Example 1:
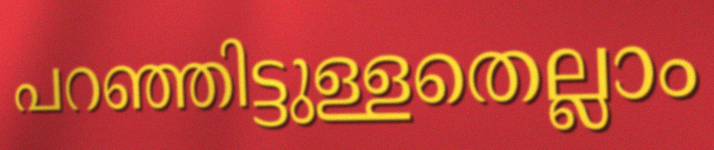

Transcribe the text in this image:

പറഞ്ഞിട്ടുള്ളതെല്ലാം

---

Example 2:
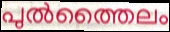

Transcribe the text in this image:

പുൽത്തൈലം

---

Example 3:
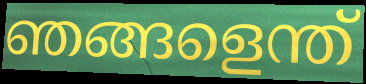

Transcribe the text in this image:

ഞങ്ങളെന്ത്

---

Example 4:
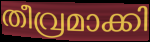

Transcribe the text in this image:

തീവ്രമാക്കി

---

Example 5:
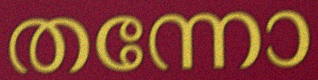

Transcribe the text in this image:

തന്നോ